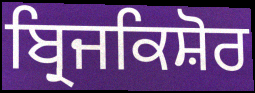
ਬ੍ਰਿਜਕਿਸ਼ੋਰ